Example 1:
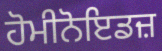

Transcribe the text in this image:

ਹੋਮੀਨੋਇਡਜ਼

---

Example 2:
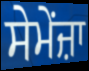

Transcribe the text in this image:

ਸੇਮੇਂਜ਼ਾ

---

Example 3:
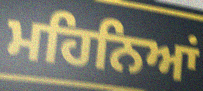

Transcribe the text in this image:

ਮਹਿਨਿਆਂ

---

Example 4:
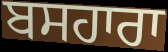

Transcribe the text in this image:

ਬਸਹਾਰਾ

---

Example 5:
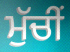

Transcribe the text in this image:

ਮੁੱਚੀਂ